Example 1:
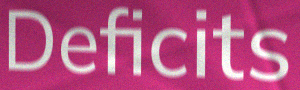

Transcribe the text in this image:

Deficits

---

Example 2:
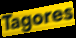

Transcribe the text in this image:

Tagores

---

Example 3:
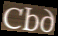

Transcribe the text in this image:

Cbd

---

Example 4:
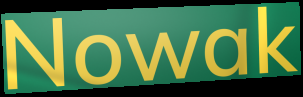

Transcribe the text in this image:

Nowak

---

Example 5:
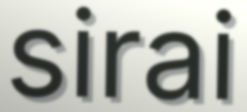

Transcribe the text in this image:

sirai